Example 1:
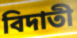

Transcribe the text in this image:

বিদাতী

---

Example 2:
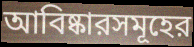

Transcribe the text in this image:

আবিষ্কারসমূহের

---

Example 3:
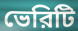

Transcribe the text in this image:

ভেরিটি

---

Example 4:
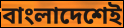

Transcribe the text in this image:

বাংলাদেশেই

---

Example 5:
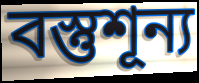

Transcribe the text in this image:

বস্তুশূন্য